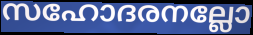
സഹോദരനല്ലോ